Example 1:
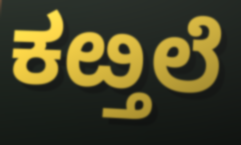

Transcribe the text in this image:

ಕೞ್ತಲೆ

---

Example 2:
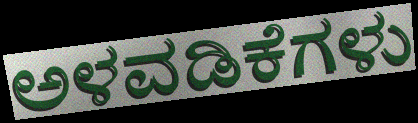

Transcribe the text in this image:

ಅಳವಡಿಕೆಗಳು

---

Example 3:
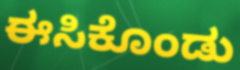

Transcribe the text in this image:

ಈಸಿಕೊಂಡು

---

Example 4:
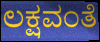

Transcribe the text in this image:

ಲಕ್ಷವಂತೆ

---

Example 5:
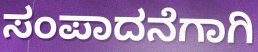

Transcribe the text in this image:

ಸಂಪಾದನೆಗಾಗಿ